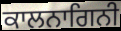
ਕਾਲਨਾਗਿਨੀ